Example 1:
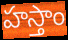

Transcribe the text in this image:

హస్తాం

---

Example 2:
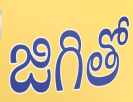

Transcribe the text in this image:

జిగితో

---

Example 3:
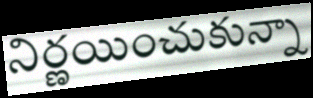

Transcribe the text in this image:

నిర్ణయించుకున్నా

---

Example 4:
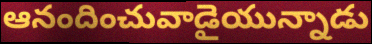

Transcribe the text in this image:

ఆనందించువాడైయున్నాడు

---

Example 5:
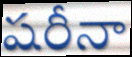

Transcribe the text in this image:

షరీనా